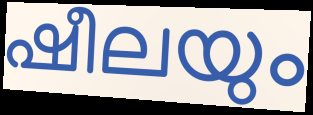
ഷീലയും